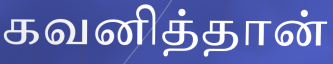
கவனித்தான்